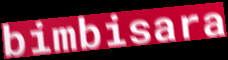
bimbisara